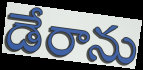
డేరాను